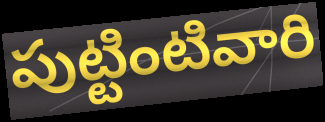
పుట్టింటివారి